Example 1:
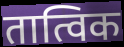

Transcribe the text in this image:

तात्विक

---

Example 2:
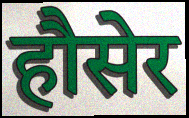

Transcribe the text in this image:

हौसेर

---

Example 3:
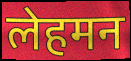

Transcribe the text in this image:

लेहमन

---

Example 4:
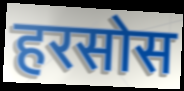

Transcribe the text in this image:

हरसोस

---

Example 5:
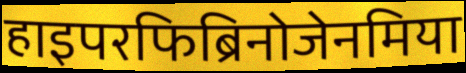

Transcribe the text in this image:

हाइपरफिब्रिनोजेनमिया